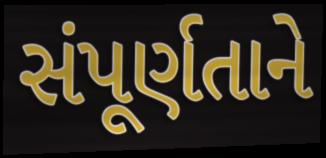
સંપૂર્ણતાને